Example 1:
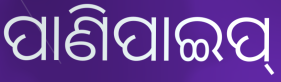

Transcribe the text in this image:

ପାଣିପାଇପ୍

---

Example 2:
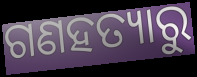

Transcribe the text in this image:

ଗଣହତ୍ୟାରୁ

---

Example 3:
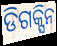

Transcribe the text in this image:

ଡିଗକ୍ସିନ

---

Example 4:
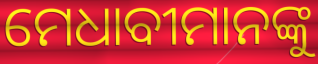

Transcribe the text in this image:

ମେଧାବୀମାନଙ୍କୁ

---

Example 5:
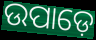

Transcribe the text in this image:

ଉପାଡ଼େ